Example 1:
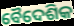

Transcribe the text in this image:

ବୈଦେଶିକ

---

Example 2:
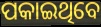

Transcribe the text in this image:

ପକାଇଥିବେ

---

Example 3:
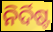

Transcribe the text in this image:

ନିର୍ଦିଷ୍ଟ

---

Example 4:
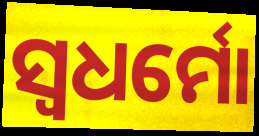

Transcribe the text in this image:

ସ୍ୱଧର୍ମୋ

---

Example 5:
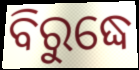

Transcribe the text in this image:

ବିରୁଦ୍ଧେ